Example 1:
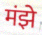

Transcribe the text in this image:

मंझे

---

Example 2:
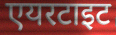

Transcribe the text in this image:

एयरटाइट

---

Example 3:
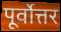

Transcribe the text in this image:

पूर्वोत्तर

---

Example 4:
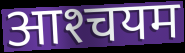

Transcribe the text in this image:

आश्चयम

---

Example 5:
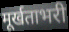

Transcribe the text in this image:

मूर्खताभरी